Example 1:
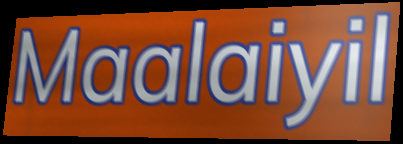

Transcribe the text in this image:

Maalaiyil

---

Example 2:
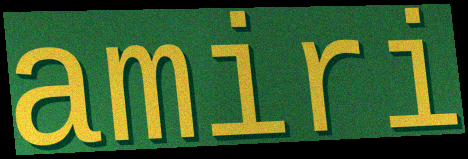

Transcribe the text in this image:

amiri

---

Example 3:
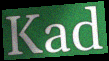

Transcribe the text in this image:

Kad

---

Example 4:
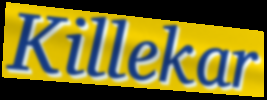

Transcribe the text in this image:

Killekar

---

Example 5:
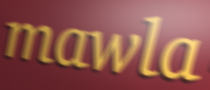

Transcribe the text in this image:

mawla